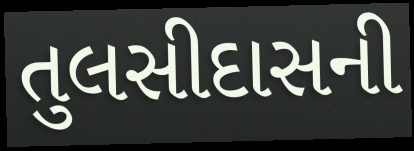
તુલસીદાસની